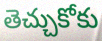
తెచ్చుకోకు